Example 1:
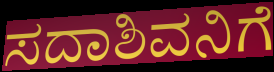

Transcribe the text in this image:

ಸದಾಶಿವನಿಗೆ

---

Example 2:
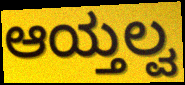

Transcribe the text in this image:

ಆಯ್ತಲ್ವ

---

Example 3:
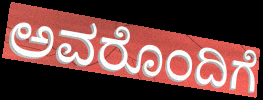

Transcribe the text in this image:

ಅವರೊಂದಿಗೆ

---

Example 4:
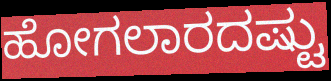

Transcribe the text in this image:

ಹೋಗಲಾರದಷ್ಟು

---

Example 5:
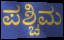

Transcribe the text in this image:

ಪಶ್ಚಿಮ